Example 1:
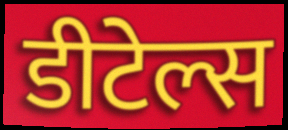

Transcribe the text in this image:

डीटेल्‍स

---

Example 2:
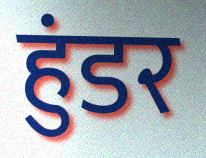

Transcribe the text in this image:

हुंडर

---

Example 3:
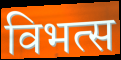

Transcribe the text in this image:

विभत्स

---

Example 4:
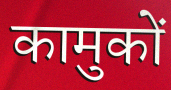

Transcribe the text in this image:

कामुकों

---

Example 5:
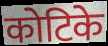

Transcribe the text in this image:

कोटिके